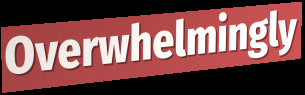
Overwhelmingly